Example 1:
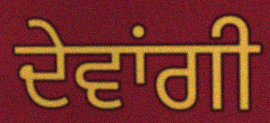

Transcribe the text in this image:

ਦੇਵਾਂਗੀ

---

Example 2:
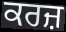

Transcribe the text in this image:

ਕਰਜ਼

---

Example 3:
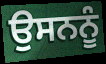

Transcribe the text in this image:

ਉਸਨਨੂੰ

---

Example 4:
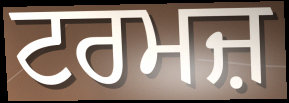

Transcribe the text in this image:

ਟਰਮਜ਼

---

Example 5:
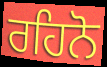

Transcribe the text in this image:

ਰਹਿਨੋ